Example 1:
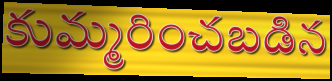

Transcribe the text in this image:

కుమ్మరించబడిన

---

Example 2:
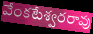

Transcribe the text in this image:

వేంకటేశ్వరరావు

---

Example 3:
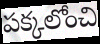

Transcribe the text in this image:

పక్కలోంచి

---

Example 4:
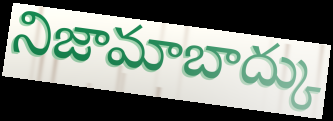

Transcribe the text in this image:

నిజామాబాద్కు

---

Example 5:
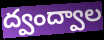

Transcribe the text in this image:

ద్వంద్వాల